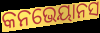
କନଭେୟାନସ